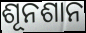
ଶୂନଶାନ